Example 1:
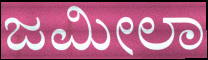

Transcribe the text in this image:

ಜಮೀಲಾ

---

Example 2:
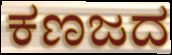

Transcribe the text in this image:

ಕಣಜದ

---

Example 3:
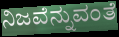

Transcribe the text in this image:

ನಿಜವೆನ್ನುವಂತೆ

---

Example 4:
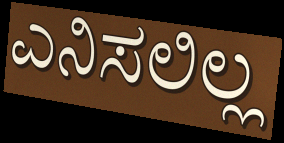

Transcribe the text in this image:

ಎನಿಸಲಿಲ್ಲ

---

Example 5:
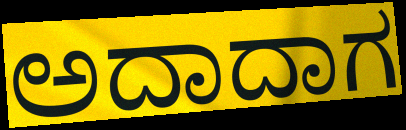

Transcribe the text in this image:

ಅದಾದಾಗ